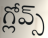
గ్లోవ్స్